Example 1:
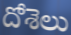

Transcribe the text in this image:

దోశెలు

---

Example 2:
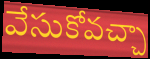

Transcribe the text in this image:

వేసుకోవచ్చా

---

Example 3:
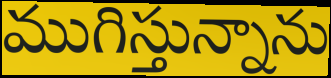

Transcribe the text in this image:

ముగిస్తున్నాను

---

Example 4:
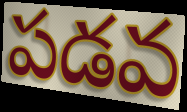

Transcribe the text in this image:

పడవ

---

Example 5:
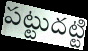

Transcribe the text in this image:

పట్టుదట్టి